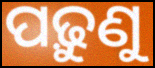
ପଢ଼ୁଣୁ